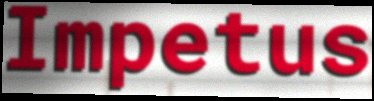
Impetus